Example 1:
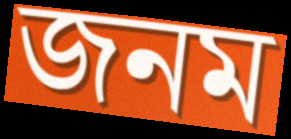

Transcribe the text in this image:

জনম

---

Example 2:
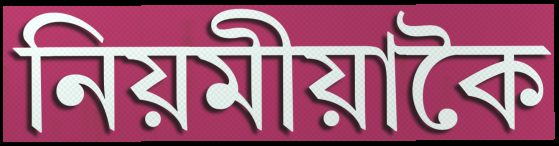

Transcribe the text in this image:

নিয়মীয়াকৈ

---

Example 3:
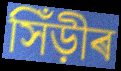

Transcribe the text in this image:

সিঁড়ীৰ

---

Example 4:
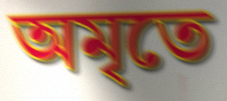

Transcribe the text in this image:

অমৃতে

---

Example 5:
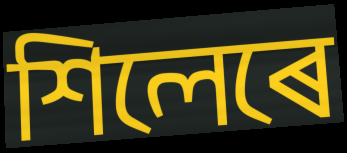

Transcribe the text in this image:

শিলেৰে